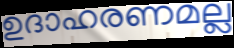
ഉദാഹരണമല്ല